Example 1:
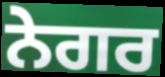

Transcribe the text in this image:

ਨੇਗਰ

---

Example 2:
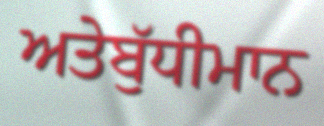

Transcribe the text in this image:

ਅਤੇਬੁੱਧੀਮਾਨ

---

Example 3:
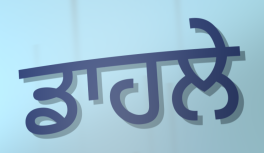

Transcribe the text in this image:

ਡਾਹਲੇ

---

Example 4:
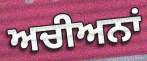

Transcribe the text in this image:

ਅਚੀਅਨਾਂ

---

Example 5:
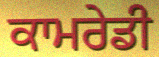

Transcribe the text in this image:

ਕਾਮਰੇਡੀ